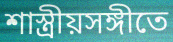
শাস্ত্রীয়সঙ্গীতে